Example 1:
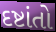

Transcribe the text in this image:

દષ્ટાંતો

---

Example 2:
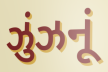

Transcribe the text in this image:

ઝુંઝનૂં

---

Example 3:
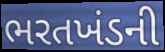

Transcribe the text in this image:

ભરતખંડની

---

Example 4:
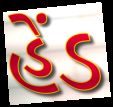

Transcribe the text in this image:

હેંડ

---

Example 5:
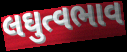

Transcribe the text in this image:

લઘુત્વભાવ